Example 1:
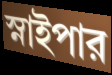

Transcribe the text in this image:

স্নাইপার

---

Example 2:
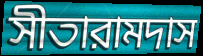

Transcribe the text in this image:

সীতারামদাস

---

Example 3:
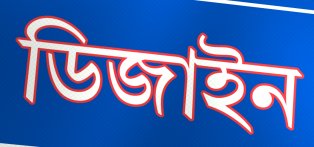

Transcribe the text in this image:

ডিজাইন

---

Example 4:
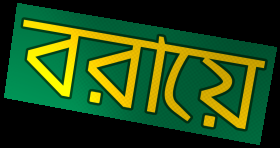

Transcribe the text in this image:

বরায়ে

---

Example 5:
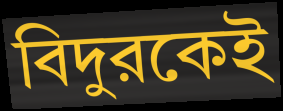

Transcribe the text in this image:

বিদুরকেই